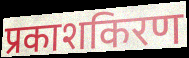
प्रकाशकिरण